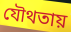
যৌথতায়